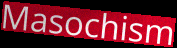
Masochism